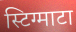
स्टिग्माटा